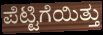
ಪೆಟ್ಟಿಗೆಯಿತ್ತು